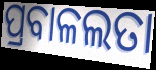
ପ୍ରବାଳଲତା